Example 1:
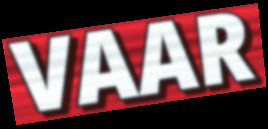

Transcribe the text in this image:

VAAR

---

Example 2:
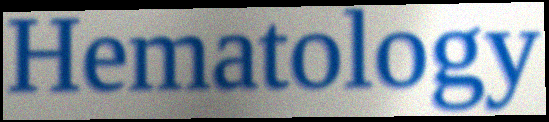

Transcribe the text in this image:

Hematology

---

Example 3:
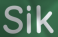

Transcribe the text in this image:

Sik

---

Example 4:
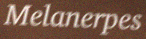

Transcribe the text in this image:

Melanerpes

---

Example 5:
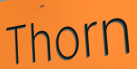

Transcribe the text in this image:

Thorn